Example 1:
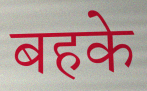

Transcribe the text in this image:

बहके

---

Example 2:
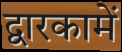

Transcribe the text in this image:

द्वारकामें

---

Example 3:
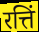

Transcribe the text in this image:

रत्तिं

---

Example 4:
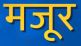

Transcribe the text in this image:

मजूर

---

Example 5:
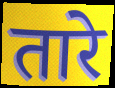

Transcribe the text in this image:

तारे